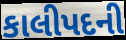
કાલીપદની